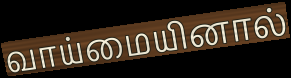
வாய்மையினால்